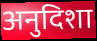
अनुदिशा